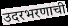
उदरभरणाची